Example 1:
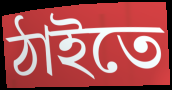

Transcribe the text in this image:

ঠাইতে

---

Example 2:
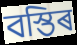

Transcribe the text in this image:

বস্তিৰ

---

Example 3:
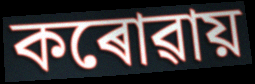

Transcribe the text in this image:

কৰোৱায়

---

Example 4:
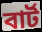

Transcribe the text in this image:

বাৰ্ট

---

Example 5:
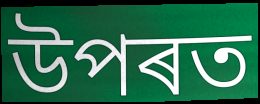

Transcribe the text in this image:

উপৰত